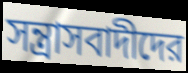
সন্ত্রাসবাদীদের